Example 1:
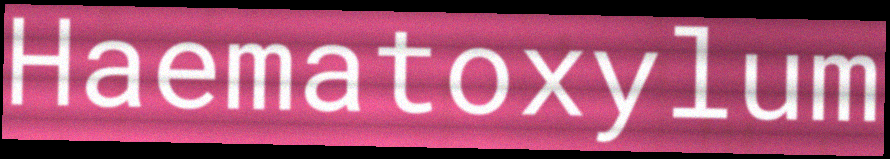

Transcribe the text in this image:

Haematoxylum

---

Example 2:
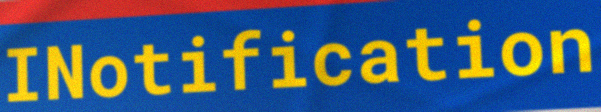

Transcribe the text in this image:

INotification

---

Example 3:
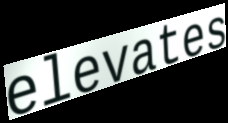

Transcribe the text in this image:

elevates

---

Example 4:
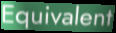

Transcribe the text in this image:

Equivalent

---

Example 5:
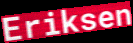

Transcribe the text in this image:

Eriksen